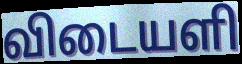
விடையளி